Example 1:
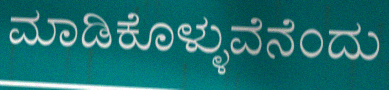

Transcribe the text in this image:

ಮಾಡಿಕೊಳ್ಳುವೆನೆಂದು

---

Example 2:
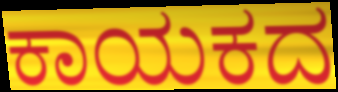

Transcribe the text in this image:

ಕಾಯಕದ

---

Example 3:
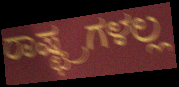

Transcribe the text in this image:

ರಾಷ್ಟ್ರಗಳಲ್ಲ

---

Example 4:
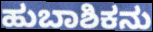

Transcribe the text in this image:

ಹುಬಾಶಿಕನು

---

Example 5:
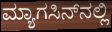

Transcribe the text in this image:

ಮ್ಯಾಗಸಿನ್‍ನಲ್ಲಿ